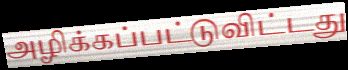
அழிக்கப்பட்டுவிட்டது